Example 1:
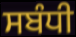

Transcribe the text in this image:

ਸਬੰਧੀ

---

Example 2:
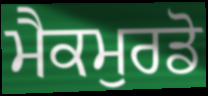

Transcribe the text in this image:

ਮੈਕਮੁਰਡੋ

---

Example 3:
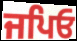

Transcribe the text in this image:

ਜਪਿਓ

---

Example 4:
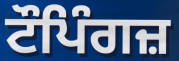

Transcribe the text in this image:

ਟੌਪਿੰਗਜ਼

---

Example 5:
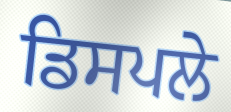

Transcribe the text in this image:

ਡਿਸਪਲੇ